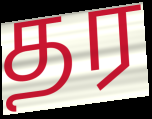
தர